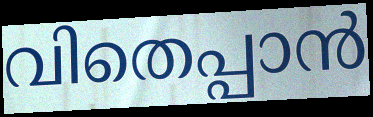
വിതെപ്പാൻ